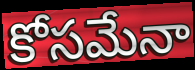
కోసమేనా